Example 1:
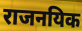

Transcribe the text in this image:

राजनयिक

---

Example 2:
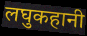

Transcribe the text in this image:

लघुकहानी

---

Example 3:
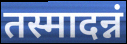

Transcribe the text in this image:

तस्मादन्नं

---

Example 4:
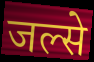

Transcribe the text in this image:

जल्से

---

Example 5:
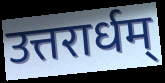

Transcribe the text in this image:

उत्तरार्धम्